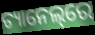
ଚ୍ୟାନେଲ୍‌ରେ